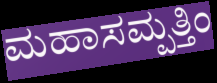
ಮಹಾಸಮ್ಪತ್ತಿಂ